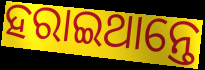
ହରାଇଥାନ୍ତେ